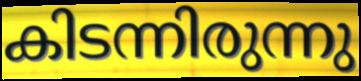
കിടന്നിരുന്നു